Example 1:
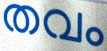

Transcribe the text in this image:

തവം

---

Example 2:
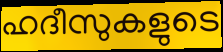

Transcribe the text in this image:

ഹദീസുകളുടെ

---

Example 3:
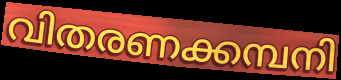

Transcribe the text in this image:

വിതരണക്കമ്പനി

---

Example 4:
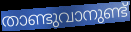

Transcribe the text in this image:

താണ്ടുവാനുണ്ട്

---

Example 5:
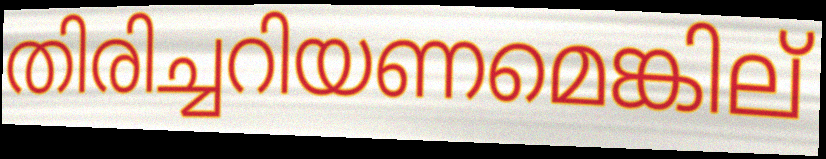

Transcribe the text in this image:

തിരിച്ചറിയണമെങ്കില്